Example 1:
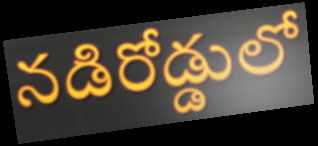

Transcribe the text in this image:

నడిరోడ్డులో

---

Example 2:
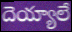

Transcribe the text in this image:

దెయ్యాలే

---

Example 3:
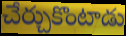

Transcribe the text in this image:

చేర్చుకొంటాడు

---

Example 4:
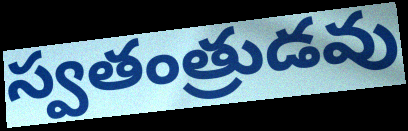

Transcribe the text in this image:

స్వతంత్రుడవు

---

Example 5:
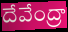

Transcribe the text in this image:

దేవేంద్రా